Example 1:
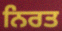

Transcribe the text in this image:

ਨਿਰਤ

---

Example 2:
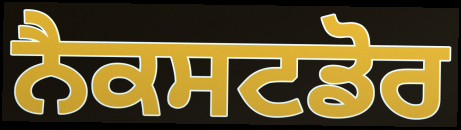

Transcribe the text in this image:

ਨੈਕਸਟਡੋਰ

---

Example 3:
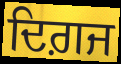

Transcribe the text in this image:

ਦਿਗ਼ਜ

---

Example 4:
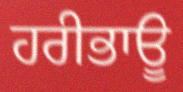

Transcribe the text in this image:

ਹਰੀਭਾਊ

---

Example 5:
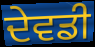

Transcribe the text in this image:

ਦੇਵਡੀ